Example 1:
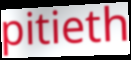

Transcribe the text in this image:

pitieth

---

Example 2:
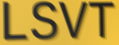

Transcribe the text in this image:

LSVT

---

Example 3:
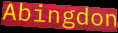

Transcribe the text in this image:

Abingdon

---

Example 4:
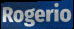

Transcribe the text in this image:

Rogerio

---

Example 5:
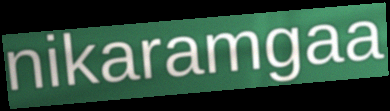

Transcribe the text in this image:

nikaramgaa